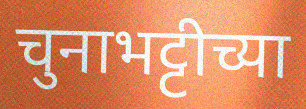
चुनाभट्टीच्या